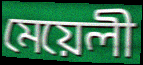
মেয়েলী